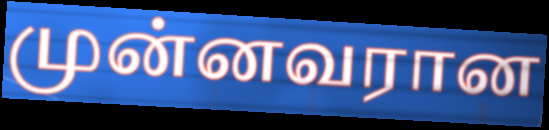
முன்னவரான